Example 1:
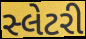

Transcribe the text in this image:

સ્લેટરી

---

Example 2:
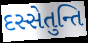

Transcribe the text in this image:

દસ્સેતુન્તિ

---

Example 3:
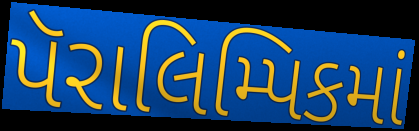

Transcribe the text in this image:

પૅરાલિમ્પિકમાં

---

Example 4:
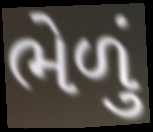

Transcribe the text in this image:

ભેળું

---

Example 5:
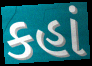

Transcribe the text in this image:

કહાં